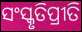
ସଂସ୍କୃତିପ୍ରୀତି